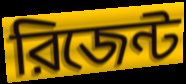
রিজেন্ট